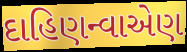
દાહિણન્વાએણ